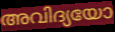
അവിദ്യയോ